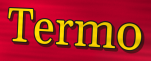
Termo